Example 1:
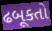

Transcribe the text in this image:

ઢબૂકતો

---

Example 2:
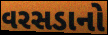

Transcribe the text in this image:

વરસડાનો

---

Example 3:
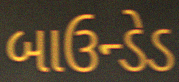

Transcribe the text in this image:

બાઉન્ડેડ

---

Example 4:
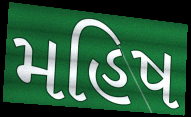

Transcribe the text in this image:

મહિષ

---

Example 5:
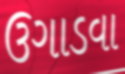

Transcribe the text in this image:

ઉગાડવા